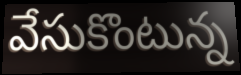
వేసుకొంటున్న